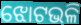
ଝୋଟଭଳି